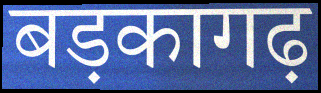
बड़कागढ़